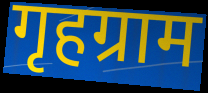
गृहग्राम